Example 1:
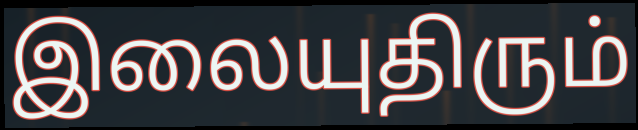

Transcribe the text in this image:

இலையுதிரும்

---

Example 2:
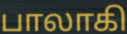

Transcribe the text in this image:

பாலாகி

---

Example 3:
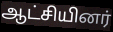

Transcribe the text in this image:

ஆட்சியினர்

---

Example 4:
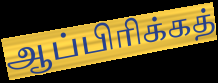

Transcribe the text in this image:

ஆப்பிரிக்கத்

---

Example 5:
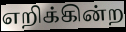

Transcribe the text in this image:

எறிக்கின்ற